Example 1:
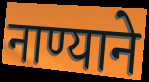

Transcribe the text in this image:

नाण्याने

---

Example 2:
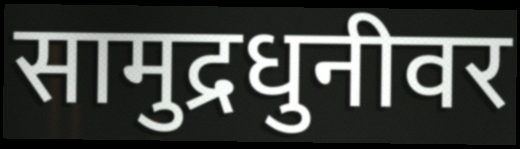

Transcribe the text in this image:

सामुद्रधुनीवर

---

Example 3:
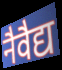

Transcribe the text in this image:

नैवैद्य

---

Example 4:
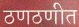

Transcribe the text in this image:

ठणठणीत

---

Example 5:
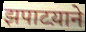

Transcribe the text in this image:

झपाटय़ाने